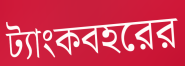
ট্যাংকবহরের